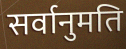
सर्वानुमति